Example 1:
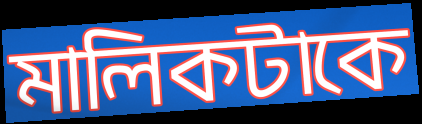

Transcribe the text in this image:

মালিকটাকে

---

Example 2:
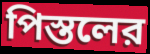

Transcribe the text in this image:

পিস্তলের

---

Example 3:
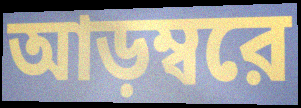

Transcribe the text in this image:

আড়ম্বরে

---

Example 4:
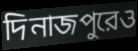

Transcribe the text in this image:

দিনাজপুরেও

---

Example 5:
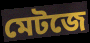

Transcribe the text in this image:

মেটজে